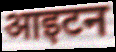
आइटन